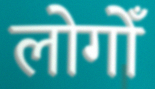
लोगोँ